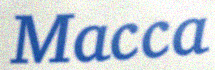
Macca